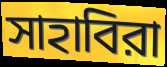
সাহাবিরা